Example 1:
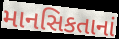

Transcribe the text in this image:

માનસિકતાનાં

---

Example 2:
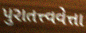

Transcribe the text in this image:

પુરાતત્ત્વવેત્તા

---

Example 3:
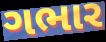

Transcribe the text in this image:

ગભાર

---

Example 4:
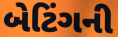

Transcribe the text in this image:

બેટિંગની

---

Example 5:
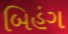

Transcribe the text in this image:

બિહંગ